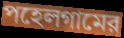
পহেলগামের